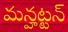
మన్హట్టన్